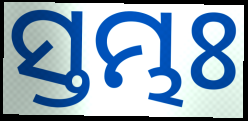
ସ୍ତମ୍ଭଃ